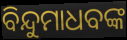
ବିନ୍ଦୁମାଧବଙ୍କ